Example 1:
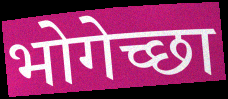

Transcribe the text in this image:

भोगेच्छा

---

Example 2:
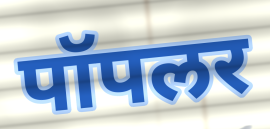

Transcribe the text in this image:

पॉपलर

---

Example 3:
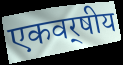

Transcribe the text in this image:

एकवर्षीय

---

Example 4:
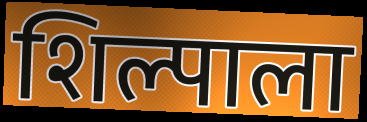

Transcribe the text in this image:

शिल्पाला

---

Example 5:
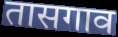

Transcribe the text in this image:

तासगाव